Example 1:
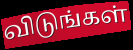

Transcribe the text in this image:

விடுங்கள்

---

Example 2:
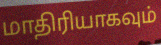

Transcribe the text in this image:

மாதிரியாகவும்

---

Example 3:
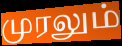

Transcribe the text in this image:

முரலும்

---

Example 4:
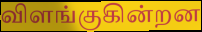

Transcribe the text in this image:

விளங்குகின்றன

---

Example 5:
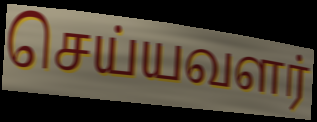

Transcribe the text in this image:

செய்யவளர்